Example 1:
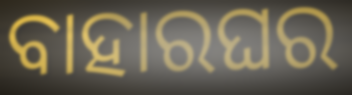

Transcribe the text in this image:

ବାହାରଘର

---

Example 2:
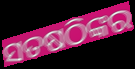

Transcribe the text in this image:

ସତଷଠିଙ୍କର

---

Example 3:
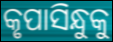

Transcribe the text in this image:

କୃପାସିନ୍ଧୁକୁ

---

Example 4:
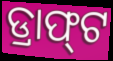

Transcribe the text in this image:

ଡ୍ରାଫ୍‍ଟ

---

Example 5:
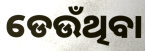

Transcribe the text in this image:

ଡେଉଁଥିବା